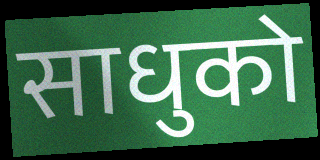
साधुको